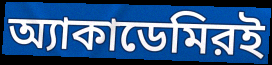
অ্যাকাডেমিরই